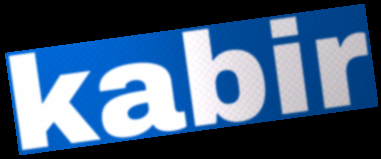
kabir